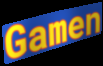
Gamen